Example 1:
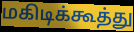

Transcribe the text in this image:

மகிடிக்கூத்து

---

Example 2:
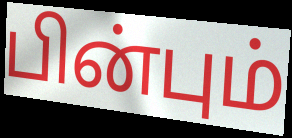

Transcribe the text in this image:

பின்பும்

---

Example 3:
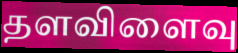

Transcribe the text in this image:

தளவிளைவு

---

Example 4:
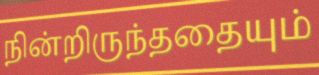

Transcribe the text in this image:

நின்றிருந்ததையும்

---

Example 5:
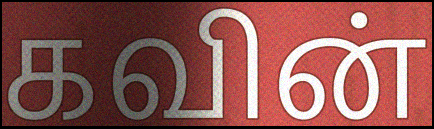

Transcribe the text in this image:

கவின்